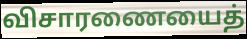
விசாரணையைத்